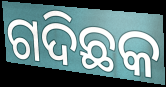
ଗଦିଛକ